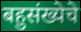
बहुसंख्येचे